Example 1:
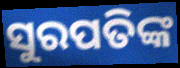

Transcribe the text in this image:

ସୁରପତିଙ୍କ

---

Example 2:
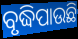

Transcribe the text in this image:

ବୃଦ୍ଧିପାଉଛି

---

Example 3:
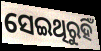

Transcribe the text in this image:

ସେଇଥିରୁହିଁ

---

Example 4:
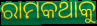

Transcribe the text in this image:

ରାମକଥାକୁ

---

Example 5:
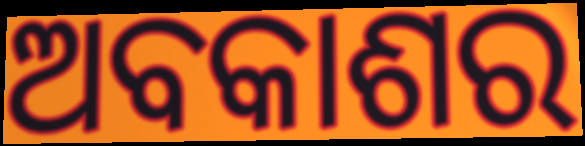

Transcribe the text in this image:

ଅବକାଶର